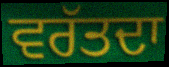
ਵਰੱਤਦਾ